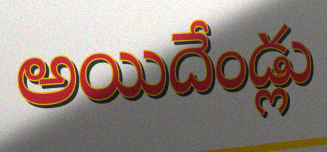
అయిదేండ్లు